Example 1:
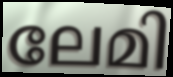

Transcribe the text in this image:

ലേമി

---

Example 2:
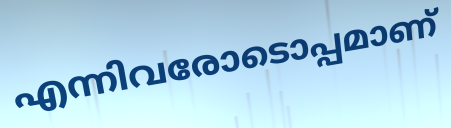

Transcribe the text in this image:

എന്നിവരോടൊപ്പമാണ്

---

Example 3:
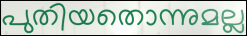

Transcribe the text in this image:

പുതിയതൊന്നുമല്ല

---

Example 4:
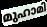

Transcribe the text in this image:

മുഹാമി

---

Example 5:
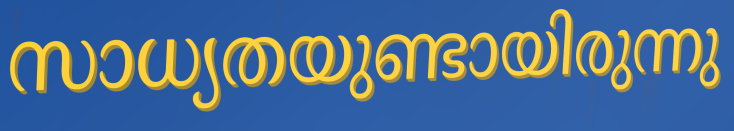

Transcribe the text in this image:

സാധ്യതയുണ്ടായിരുന്നു